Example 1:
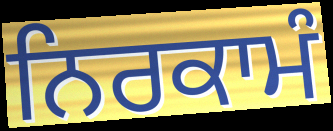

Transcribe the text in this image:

ਨਿਰਕਾਮੰ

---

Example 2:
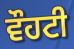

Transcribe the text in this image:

ਵੌਹਟੀ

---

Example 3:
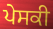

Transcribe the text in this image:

ਪੇਸਕੀ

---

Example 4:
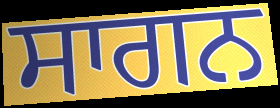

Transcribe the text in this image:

ਸਾਗਨ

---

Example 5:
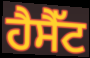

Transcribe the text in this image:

ਹੈਸੈੱਟ